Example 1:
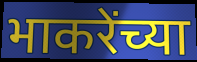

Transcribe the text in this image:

भाकरेंच्या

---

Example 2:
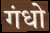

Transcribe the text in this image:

गंधो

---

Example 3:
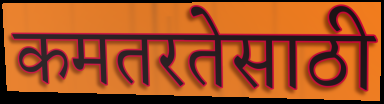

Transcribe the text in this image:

कमतरतेसाठी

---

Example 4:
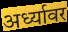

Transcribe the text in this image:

अर्ध्यावर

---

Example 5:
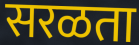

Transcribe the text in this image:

सरळता